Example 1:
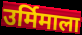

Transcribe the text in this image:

उर्मिमाला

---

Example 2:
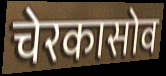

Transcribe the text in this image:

चेरकासोव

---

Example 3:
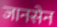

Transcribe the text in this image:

जानसेन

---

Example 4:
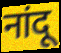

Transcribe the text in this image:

नांदू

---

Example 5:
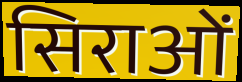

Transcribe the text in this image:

सिराओं